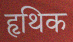
हृथिक